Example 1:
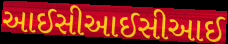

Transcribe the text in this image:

આઈસીઆઈસીઆઈ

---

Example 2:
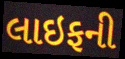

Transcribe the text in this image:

લાઇફની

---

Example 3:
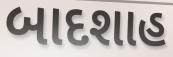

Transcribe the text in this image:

બાદશાહ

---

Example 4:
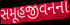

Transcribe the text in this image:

સમૂહજીવનના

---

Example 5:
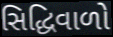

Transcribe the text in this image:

સિદ્ધિવાળો